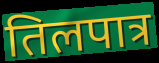
तिलपात्र